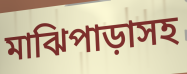
মাঝিপাড়াসহ